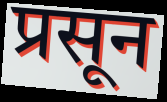
प्रसून